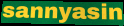
sannyasin